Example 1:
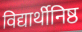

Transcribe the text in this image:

विद्यार्थीनिष्ठ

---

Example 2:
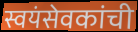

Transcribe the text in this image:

स्वयंसेवकांची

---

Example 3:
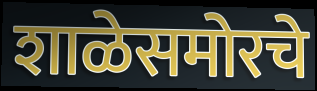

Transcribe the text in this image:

शाळेसमोरचे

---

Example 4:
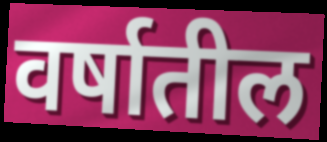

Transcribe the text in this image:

वर्षातील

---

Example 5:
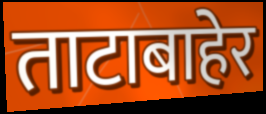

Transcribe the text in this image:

ताटाबाहेर